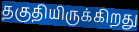
தகுதியிருக்கிறது